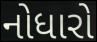
નોધારો